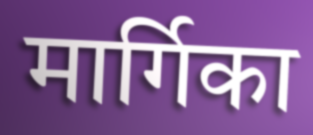
मार्गिका